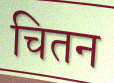
चितन